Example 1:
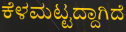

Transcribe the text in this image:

ಕೆಳಮಟ್ಟದ್ದಾಗಿದೆ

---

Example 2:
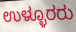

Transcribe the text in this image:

ಉಳ್ಳೂರರು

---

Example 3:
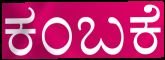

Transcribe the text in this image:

ಕಂಬಕೆ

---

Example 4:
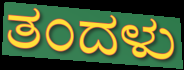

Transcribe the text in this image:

ತಂದಳು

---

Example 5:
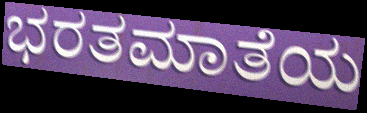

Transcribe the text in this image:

ಭರತಮಾತೆಯ